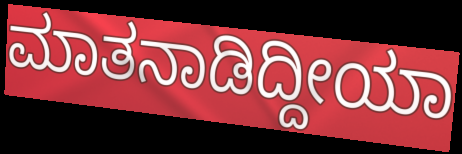
ಮಾತನಾಡಿದ್ದೀಯಾ